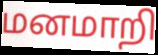
மனமாறி